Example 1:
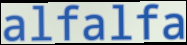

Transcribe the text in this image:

alfalfa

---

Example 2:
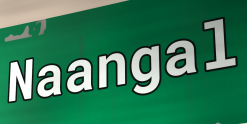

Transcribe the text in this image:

Naangal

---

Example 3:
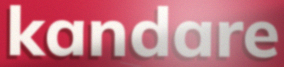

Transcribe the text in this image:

kandare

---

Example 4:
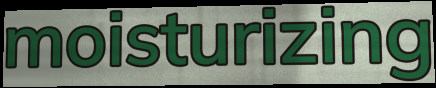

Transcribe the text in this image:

moisturizing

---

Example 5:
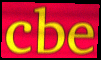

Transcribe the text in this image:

cbe